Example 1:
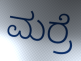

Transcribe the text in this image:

ಮರ್ರೆ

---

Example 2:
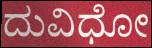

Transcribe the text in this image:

ದುವಿಧೋ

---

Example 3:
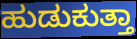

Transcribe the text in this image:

ಹುಡುಕುತ್ತಾ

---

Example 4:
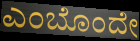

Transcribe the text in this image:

ಎಂಬೊಂದೇ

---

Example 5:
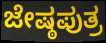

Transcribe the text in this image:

ಜೇಷ್ಠಪುತ್ರ